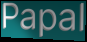
Papal